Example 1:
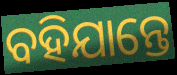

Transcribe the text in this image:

ବହିଯାନ୍ତେ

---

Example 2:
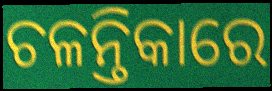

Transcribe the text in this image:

ଚଳନ୍ତିକାରେ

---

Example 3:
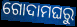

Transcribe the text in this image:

ଗୋଦାମଘରୁ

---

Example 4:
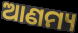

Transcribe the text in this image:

ଆଣମ୍ୟ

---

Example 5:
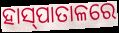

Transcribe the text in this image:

ହାସ୍‍ପାତାଳରେ